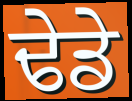
ਢੇਡੇ